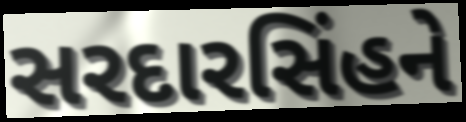
સરદારસિંહને